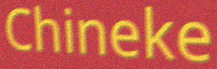
Chineke